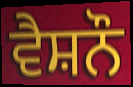
ਵੈਸ਼ਨੌ